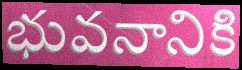
భువనానికి